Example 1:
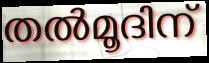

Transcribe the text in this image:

തൽമൂദിന്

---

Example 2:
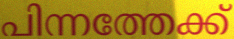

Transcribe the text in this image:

പിന്നത്തേക്ക്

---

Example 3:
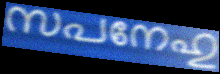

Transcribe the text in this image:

സപനേഹു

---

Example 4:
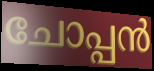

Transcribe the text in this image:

ചോപ്പൻ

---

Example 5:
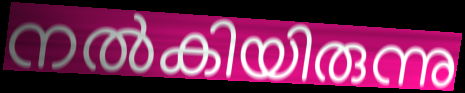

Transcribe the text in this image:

നൽകിയിരുന്നു